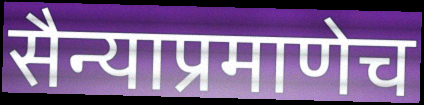
सैन्याप्रमाणेच